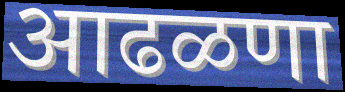
आढळणा